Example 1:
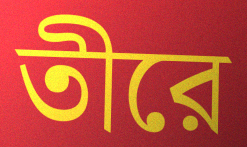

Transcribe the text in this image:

তীরে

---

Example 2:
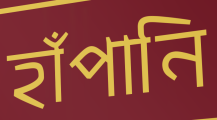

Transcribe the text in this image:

হাঁপানি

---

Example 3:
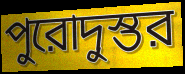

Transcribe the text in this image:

পুরোদুস্তর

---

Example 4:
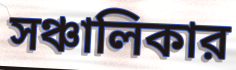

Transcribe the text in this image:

সঞ্চালিকার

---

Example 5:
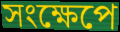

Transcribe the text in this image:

সংক্ষেপে